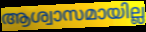
ആശ്വാസമായില്ല